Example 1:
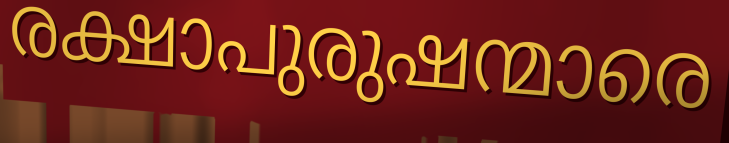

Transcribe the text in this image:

രക്ഷാപുരുഷന്മാരെ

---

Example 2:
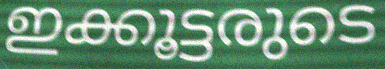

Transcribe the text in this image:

ഇക്കൂട്ടരുടെ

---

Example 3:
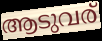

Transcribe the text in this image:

ആടുവര്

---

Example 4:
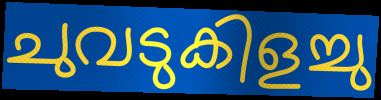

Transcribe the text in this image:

ചുവടുകിളച്ചു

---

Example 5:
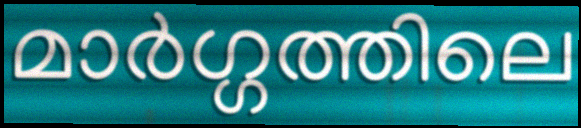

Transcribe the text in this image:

മാർഗ്ഗത്തിലെ